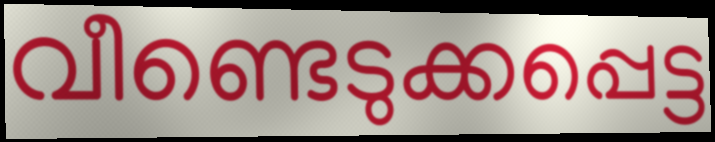
വീണ്ടെടുക്കപ്പെട്ട